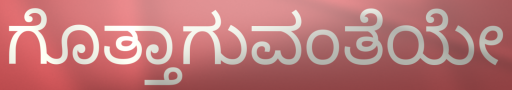
ಗೊತ್ತಾಗುವಂತೆಯೇ